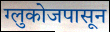
ग्लुकोजपासून